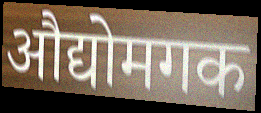
औद्योमगक